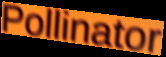
Pollinator